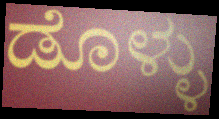
ಡೊಳ್ಳು